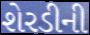
શેરડીની